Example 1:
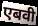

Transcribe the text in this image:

एबवी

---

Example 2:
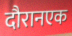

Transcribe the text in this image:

दौरानएक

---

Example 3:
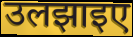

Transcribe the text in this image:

उलझाइए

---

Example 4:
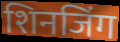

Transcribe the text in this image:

शिनजिंग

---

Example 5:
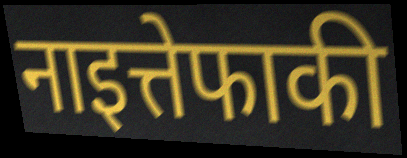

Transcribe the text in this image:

नाइत्तेफाकी